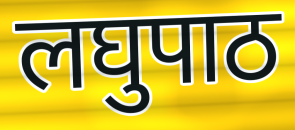
लघुपाठ